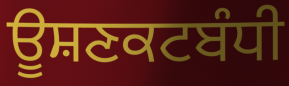
ਊਸ਼ਣਕਟਬੰਧੀ